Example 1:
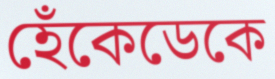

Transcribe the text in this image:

হেঁকেডেকে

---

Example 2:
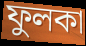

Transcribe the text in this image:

ফুলকা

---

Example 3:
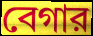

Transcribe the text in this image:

বেগার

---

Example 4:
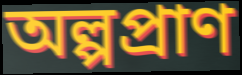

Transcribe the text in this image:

অল্পপ্রাণ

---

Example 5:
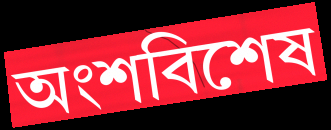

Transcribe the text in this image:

অংশবিশেষ